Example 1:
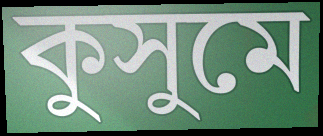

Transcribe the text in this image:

কুসুমে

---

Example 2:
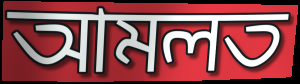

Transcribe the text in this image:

আমলত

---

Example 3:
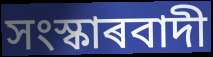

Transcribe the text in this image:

সংস্কাৰবাদী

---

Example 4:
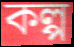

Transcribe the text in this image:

কল্প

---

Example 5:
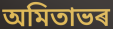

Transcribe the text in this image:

অমিতাভৰ